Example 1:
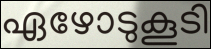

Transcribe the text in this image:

ഏഴോടുകൂടി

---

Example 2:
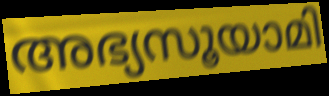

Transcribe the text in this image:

അഭ്യസൂയാമി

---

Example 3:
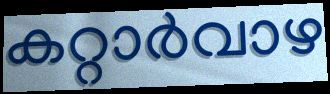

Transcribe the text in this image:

കറ്റാർവാഴ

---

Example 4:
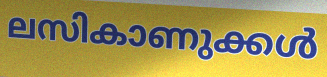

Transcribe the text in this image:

ലസികാണുക്കൾ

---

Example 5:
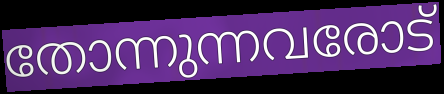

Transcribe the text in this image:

തോന്നുന്നവരോട്